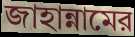
জাহান্নামের